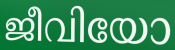
ജീവിയോ